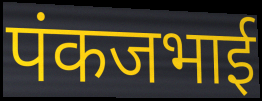
पंकजभाई